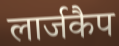
लार्जकैप